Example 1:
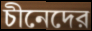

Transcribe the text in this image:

চীনেদের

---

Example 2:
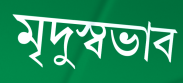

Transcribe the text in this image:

মৃদুস্বভাব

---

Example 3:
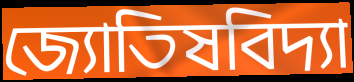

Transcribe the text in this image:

জ্যোতিষবিদ্যা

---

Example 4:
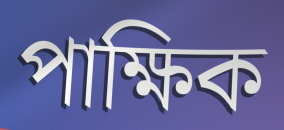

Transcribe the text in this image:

পাক্ষিক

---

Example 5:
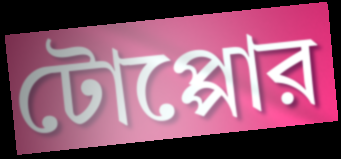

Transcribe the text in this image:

টোপ্পোর